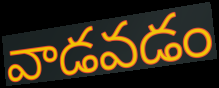
వాడవడం